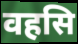
वहसि